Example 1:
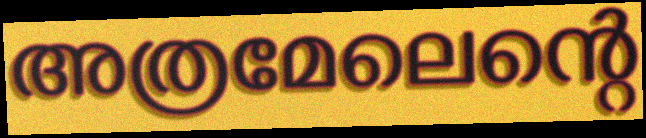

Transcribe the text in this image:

അത്രമേലെന്റെ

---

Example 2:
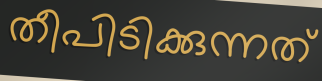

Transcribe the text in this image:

തീപിടിക്കുന്നത്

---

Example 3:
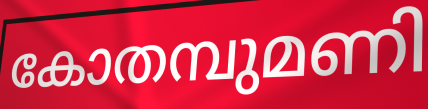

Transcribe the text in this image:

കോതമ്പുമണി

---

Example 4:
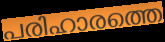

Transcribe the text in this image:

പരിഹാരത്തെ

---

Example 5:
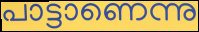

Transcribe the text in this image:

പാട്ടാണെന്നു